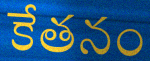
కేతనం